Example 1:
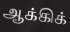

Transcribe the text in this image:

ஆக்கிக்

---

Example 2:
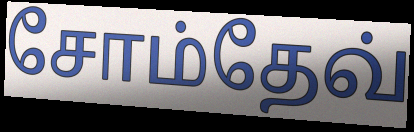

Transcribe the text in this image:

சோம்தேவ்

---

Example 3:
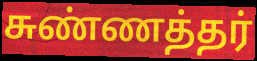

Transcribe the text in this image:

சுண்ணத்தர்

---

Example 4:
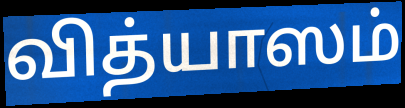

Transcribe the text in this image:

வித்யாஸம்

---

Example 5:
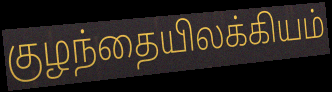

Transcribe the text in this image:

குழந்தையிலக்கியம்